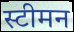
स्टीमन